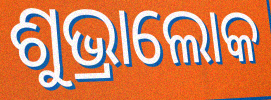
ଶୁଭ୍ରାଲୋକ